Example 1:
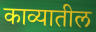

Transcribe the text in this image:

काव्यातील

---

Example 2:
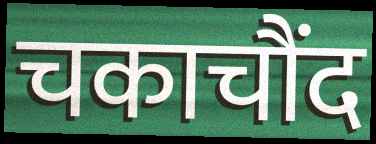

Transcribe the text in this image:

चकाचौंद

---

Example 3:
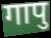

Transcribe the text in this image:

गापु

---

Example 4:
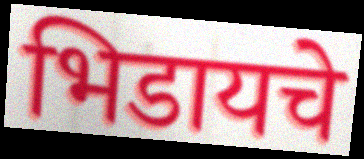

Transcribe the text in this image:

भिडायचे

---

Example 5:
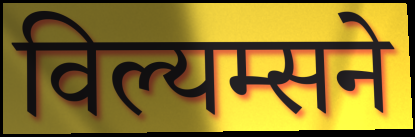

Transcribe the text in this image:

विल्यम्सने